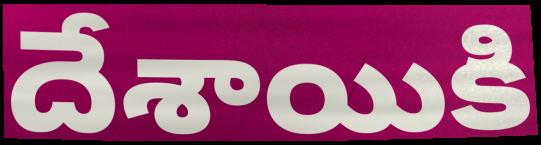
దేశాయికి